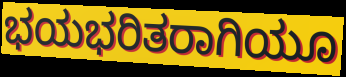
ಭಯಭರಿತರಾಗಿಯೂ